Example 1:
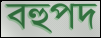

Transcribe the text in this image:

বহুপদ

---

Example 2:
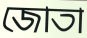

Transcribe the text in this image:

জোতা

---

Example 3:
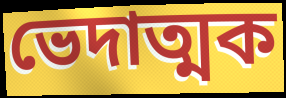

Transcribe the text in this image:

ভেদাত্মক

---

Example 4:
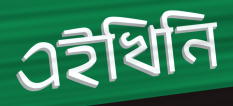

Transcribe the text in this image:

এইখিনি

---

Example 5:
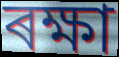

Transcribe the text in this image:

ৰক্ষা